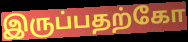
இருப்பதற்கோ